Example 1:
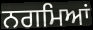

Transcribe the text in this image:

ਨਗਮਿਆਂ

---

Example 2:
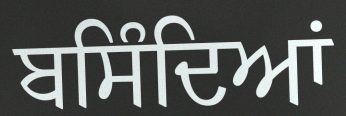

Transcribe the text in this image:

ਬਸਿੰਦਿਆਂ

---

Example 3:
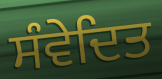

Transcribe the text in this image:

ਸੰਵੇਦਿਤ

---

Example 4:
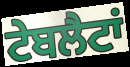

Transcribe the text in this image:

ਟੇਬਲੈਟਾਂ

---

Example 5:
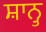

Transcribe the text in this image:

ਸ਼ਾਨ੍ਤ